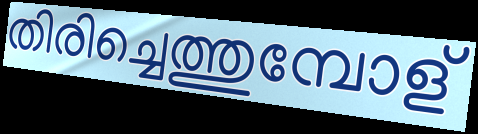
തിരിച്ചെത്തുമ്പോള്